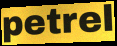
petrel